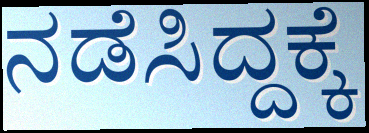
ನಡೆಸಿದ್ದಕ್ಕೆ